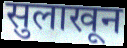
सुलाखून